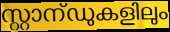
സ്റ്റാന്ഡുകളിലും